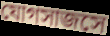
যোগসাজসে